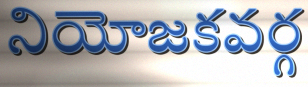
నియోజకవర్గ